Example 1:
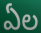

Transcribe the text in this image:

ఏల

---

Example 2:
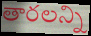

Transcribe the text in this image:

తారలన్ని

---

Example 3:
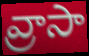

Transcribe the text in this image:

వ్రాసా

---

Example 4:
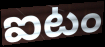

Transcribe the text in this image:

ఐటం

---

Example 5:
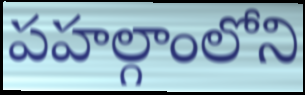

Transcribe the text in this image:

పహల్గాంలోని